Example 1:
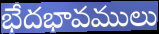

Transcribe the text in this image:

భేదభావములు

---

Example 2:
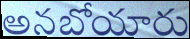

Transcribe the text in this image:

అనబోయారు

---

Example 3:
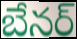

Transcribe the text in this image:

బేనర్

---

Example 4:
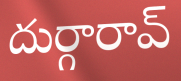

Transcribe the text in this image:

దుర్గారావ్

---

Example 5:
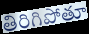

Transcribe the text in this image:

తిరిగిపోతూ